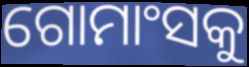
ଗୋମାଂସକୁ